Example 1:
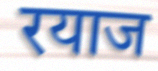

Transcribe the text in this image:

रयाज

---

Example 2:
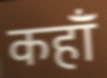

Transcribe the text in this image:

कहॉँ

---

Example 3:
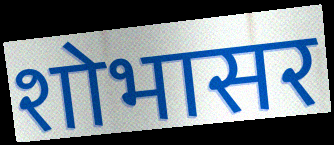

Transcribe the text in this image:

शोभासर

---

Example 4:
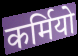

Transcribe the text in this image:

कर्मियो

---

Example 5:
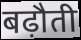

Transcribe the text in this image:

बढ़ौती